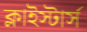
ক্লাইস্টার্স